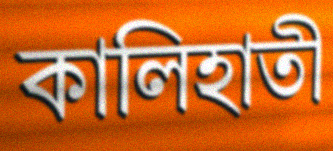
কালিহাতী